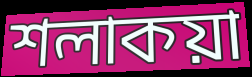
শলাকয়া